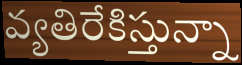
వ్యతిరేకిస్తున్నా